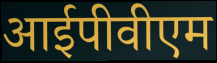
आईपीवीएम